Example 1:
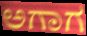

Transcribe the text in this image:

ಅಗಾಗ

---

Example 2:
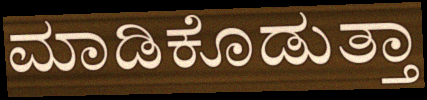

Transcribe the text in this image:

ಮಾಡಿಕೊಡುತ್ತಾ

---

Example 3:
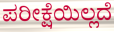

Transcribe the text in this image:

ಪರೀಕ್ಷೆಯಿಲ್ಲದೆ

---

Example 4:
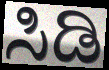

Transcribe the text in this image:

ಸಿಡಿ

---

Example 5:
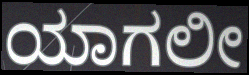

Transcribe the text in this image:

ಯಾಗಲೀ